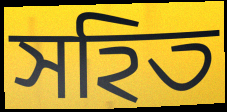
সহিত